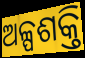
ଅଳ୍ପଶକ୍ତି